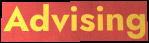
Advising